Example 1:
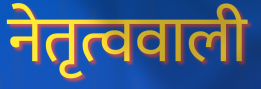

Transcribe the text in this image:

नेतृत्ववाली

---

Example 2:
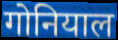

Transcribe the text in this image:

गोनियाल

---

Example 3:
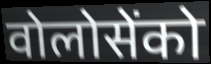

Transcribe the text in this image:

वोलोसेंको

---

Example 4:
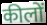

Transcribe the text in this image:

कीलों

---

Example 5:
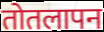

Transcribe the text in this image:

तोतलापन